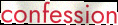
confession